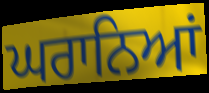
ਘਰਾਨਿਆਂ